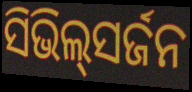
ସିଭିଲ୍‌ସର୍ଜନ